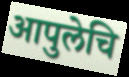
आपुलेचि